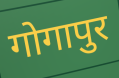
गोगापुर